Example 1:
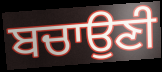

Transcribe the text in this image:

ਬਚਾਉਣੀ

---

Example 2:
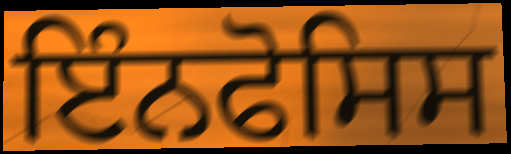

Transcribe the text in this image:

ਇੰਨਫੋਸਿਸ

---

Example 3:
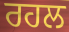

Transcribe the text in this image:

ਰਹਲ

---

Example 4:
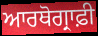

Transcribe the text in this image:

ਆਰਥੋਗ੍ਰਾਫ਼ੀ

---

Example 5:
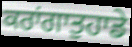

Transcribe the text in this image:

ਕਰਾਂਗਾਤੁਹਾਡੇ